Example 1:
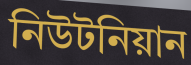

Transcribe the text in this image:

নিউটনিয়ান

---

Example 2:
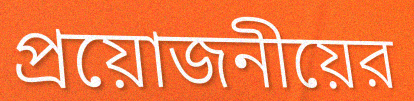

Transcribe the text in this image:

প্রয়োজনীয়ের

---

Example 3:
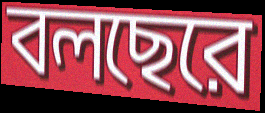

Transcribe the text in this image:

বলছেরে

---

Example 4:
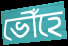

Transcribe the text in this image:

ভৌঁহে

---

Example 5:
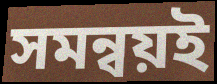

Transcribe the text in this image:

সমন্বয়ই